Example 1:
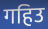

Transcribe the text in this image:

गहिउ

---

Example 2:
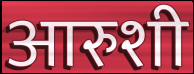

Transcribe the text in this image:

आरुशी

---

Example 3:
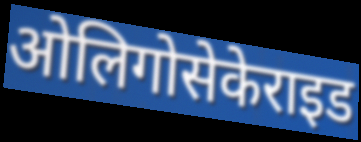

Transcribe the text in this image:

ओलिगोसेकेराइड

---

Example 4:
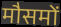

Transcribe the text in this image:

मौसमों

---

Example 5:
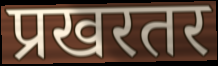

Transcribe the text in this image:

प्रखरतर